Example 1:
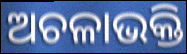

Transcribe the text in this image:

ଅଚଳାଭକ୍ତି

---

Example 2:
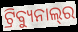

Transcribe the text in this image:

ଟ୍ରିବ୍ୟୁନାଲ୍‍ର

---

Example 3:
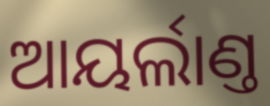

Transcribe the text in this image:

ଆୟର୍ଲାଣ୍ତ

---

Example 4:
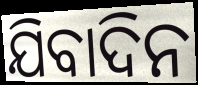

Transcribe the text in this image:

ଯିବାଦିନ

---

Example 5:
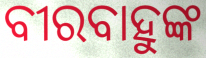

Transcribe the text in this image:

ବୀରବାହୁଙ୍କ